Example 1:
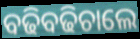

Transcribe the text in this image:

ବଢିବଢିଚାଲେ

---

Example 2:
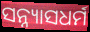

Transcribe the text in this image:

ସନ୍ନ୍ୟାସଧର୍ମ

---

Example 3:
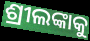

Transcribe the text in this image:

ଶ୍ରୀଲଙ୍କାକୁ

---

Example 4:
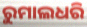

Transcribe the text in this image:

ରୁମାଲଧରି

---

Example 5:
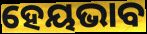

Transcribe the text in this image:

ହେୟଭାବ